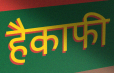
हैकाफी